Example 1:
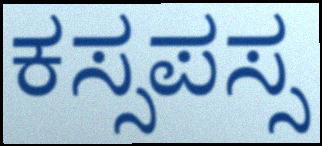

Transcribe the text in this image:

ಕಸ್ಸಪಸ್ಸ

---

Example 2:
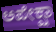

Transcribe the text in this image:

ಅಪೇಕ್ಷಾ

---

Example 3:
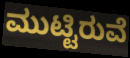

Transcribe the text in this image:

ಮುಟ್ಟಿರುವೆ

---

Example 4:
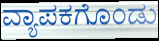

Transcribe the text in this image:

ವ್ಯಾಪಕಗೊಂಡು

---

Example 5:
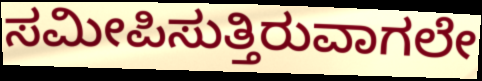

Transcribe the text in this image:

ಸಮೀಪಿಸುತ್ತಿರುವಾಗಲೇ